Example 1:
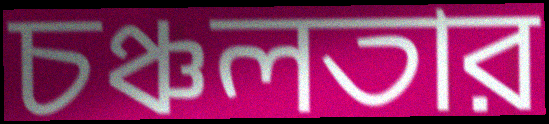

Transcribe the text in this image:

চঞ্চলতার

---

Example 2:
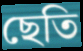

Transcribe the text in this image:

ছেতি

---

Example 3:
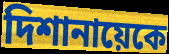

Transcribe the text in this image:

দিশানায়েকে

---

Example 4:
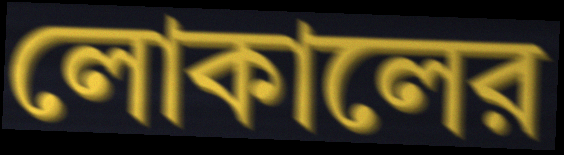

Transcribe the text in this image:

লোকালের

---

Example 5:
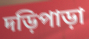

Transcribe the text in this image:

দড়িপাড়া